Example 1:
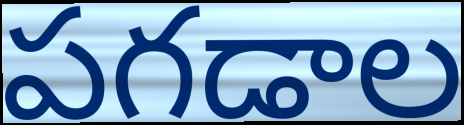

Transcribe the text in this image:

పగడాల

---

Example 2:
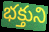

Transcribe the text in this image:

భక్తుని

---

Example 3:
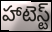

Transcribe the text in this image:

హాటెస్ట్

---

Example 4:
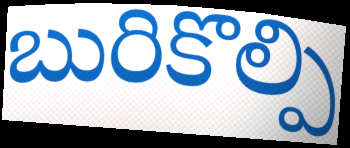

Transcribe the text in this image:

బురికొల్పి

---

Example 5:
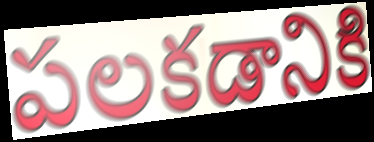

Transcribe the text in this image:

పలకడానికి